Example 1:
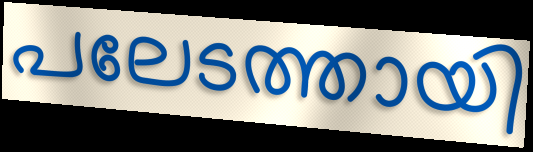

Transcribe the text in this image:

പലേടത്തായി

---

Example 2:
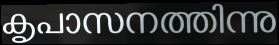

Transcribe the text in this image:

കൃപാസനത്തിന്നു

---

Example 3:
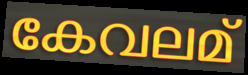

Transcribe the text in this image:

കേവലമ്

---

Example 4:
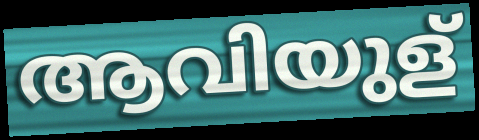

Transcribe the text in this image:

ആവിയുള്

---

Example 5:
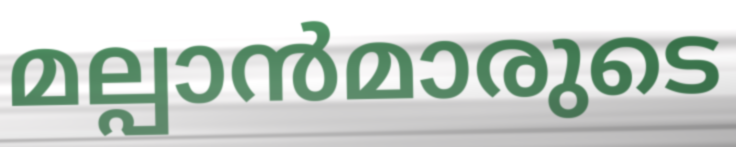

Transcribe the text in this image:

മല്പാൻമാരുടെ